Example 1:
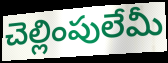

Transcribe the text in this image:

చెల్లింపులేమీ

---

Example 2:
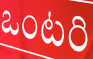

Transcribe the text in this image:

ఒంటరి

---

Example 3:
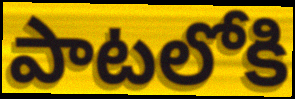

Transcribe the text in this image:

పాటలోకి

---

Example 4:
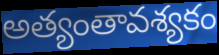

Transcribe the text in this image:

అత్యంతావశ్యకం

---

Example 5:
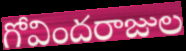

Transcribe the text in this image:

గోవిందరాజుల